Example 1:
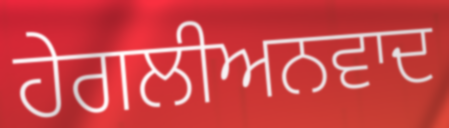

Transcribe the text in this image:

ਹੇਗਲੀਅਨਵਾਦ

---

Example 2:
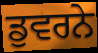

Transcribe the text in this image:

ਡੁਵਰਨੇ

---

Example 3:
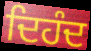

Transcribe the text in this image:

ਦਿਹੰਦ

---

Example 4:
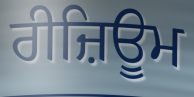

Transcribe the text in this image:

ਰੀਜ਼ਿਊਮ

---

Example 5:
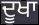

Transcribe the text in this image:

ਦੂਖਾ